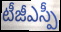
టీజీఎస్పీ